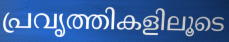
പ്രവൃത്തികളിലൂടെ